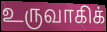
உருவாகிக்